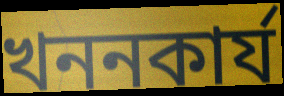
খননকাৰ্য